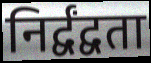
निर्द्वंद्वता